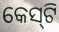
କେସ୍‌ଟି